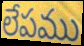
లేపము